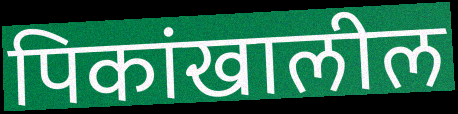
पिकांखालील